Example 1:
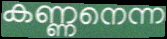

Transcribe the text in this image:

കണ്ണനെന്ന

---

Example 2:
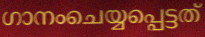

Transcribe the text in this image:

ഗാനംചെയ്യപ്പെട്ടത്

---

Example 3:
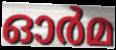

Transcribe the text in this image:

ഓർമ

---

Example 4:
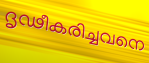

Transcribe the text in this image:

ദൃഢീകരിച്ചവനെ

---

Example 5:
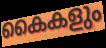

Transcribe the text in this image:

കൈകളും